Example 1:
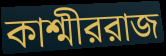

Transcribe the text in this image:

কাশ্মীররাজ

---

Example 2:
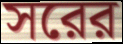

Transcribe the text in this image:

সরের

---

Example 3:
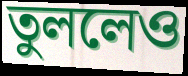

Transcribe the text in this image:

তুললেও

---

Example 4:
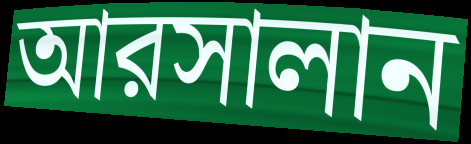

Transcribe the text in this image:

আরসালান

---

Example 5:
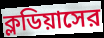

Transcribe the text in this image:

ক্লডিয়াসের